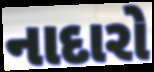
નાદારો